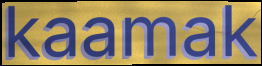
kaamak